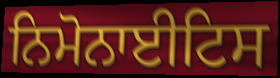
ਨਿਮੋਨਾਈਟਿਸ